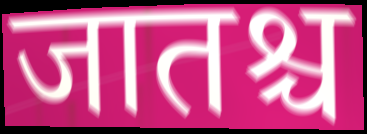
जातश्च